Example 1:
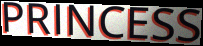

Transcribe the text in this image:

PRINCESS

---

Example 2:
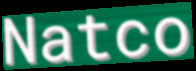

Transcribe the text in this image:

Natco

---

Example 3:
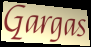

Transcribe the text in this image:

Gargas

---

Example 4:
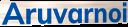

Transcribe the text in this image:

Aruvarnoi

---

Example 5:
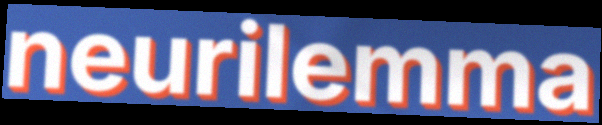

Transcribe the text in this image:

neurilemma